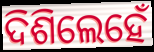
ଦିଶିଲେହେଁ